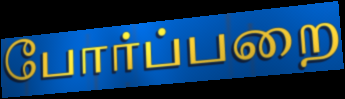
போர்ப்பறை